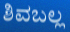
ಶಿವಬಲ್ಲ